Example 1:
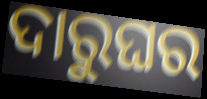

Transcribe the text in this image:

ଦାରୁଘର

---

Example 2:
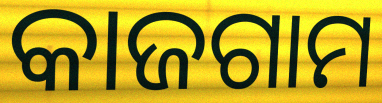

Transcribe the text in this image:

କାଜଗାମ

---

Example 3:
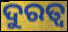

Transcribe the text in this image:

ଦୁରତ୍ଵ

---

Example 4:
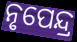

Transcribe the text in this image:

ନୃପେନ୍ଦ୍ର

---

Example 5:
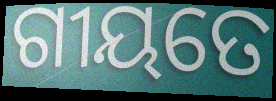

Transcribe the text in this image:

ଗୀୟତେ